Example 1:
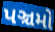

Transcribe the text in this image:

પઞ્ચમો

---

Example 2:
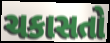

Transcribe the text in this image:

ચકાસતો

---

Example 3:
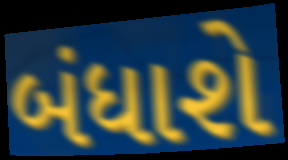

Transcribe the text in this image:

બંધાશે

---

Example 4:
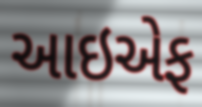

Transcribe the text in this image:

આઇએફ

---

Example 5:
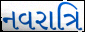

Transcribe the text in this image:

નવરાત્રિ